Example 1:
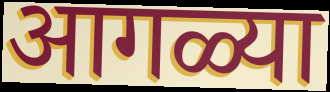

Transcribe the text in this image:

आगळ्या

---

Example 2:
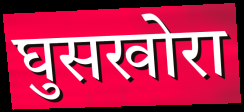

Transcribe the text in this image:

घुसखोरा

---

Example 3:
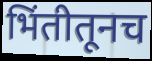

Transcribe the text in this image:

भिंतीतूनच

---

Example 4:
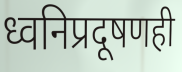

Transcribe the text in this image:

ध्वनिप्रदूषणही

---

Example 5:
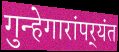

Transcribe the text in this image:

गुन्हेगारांपर्यंत